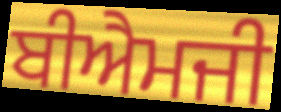
ਬੀਐਮਜੀ